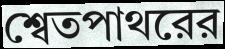
শ্বেতপাথরের